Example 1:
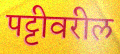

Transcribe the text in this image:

पट्टीवरील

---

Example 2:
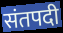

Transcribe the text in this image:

संतपदी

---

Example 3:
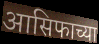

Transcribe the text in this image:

आसिफाच्या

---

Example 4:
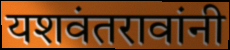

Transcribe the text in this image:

यशवंतरावांनी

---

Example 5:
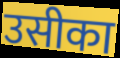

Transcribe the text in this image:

उसीका